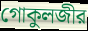
গোকুলজীর